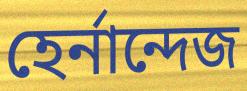
হের্নান্দেজ